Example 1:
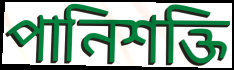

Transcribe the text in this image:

পানিশক্তি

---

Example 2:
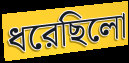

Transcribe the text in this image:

ধরেছিলো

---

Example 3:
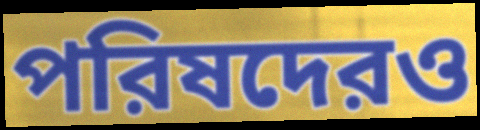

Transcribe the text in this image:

পরিষদেরও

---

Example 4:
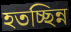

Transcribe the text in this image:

হতচ্ছিন্ন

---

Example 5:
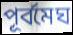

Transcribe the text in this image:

পূর্বমেঘ